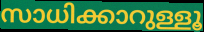
സാധിക്കാറുള്ളൂ